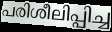
പരിശീലിപ്പിച്ച